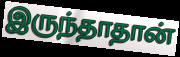
இருந்தாதான்